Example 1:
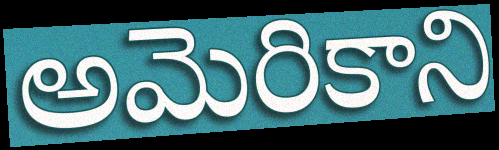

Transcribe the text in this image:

అమెరికాని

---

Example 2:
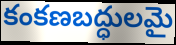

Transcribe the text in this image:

కంకణబద్ధులమై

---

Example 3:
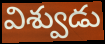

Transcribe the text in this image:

విశ్వుడు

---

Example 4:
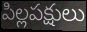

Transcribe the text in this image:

పిల్లపక్షులు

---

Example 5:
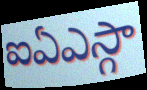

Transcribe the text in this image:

ఐఏఎస్గా